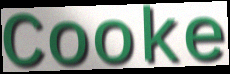
Cooke